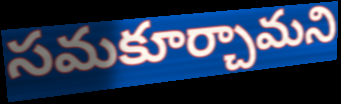
సమకూర్చామని